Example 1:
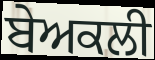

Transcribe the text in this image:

ਬੇਅਕਲੀ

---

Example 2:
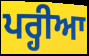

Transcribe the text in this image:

ਪਰ੍ਹੀਆ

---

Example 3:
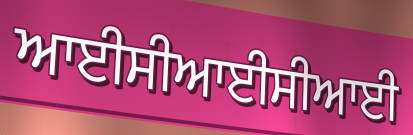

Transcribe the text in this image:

ਆਈਸੀਆਈਸੀਆਈ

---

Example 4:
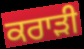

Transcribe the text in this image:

ਕਰਾੜੀ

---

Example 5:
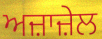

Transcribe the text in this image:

ਅਜ਼ਾਜ਼ੇਲ